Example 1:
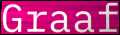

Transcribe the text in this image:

Graaf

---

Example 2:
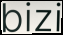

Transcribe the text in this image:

bizi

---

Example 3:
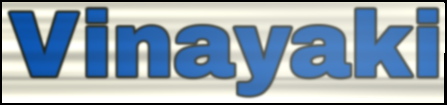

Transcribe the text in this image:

Vinayaki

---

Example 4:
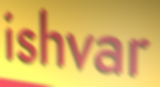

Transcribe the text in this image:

ishvar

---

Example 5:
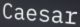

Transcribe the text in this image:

Caesar